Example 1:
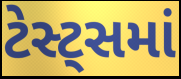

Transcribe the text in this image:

ટેસ્ટ્સમાં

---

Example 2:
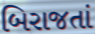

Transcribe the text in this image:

બિરાજતાં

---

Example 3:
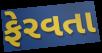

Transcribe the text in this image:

ફેરવતા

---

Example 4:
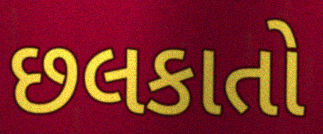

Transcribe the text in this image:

છલકાતો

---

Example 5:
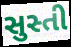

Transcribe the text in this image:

સુસ્તી